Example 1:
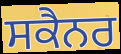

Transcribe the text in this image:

ਸਕੈਨਰ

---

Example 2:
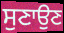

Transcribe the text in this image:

ਸੁਣਾਉਣ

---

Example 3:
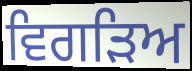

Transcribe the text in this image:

ਵਿਗੜਿਅ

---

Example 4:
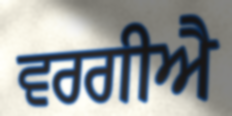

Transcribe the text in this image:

ਵਰਗੀਐ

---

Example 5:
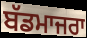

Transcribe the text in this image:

ਬੱਡਮਾਜਰਾ